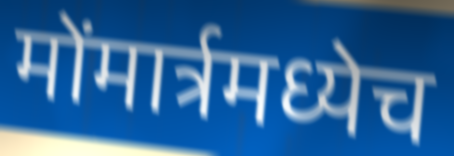
मोंमार्त्रमध्येच